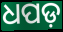
ଧପଡ଼